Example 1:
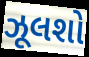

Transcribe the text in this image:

ઝૂલશો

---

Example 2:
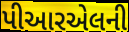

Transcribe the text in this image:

પીઆરએલની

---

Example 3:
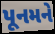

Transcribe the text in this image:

પૂનમને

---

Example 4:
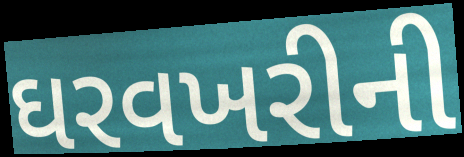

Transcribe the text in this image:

ઘરવખરીની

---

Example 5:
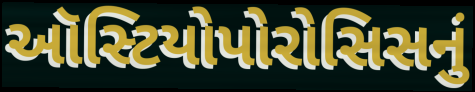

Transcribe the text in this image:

ઑસ્ટિયોપોરોસિસનું